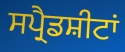
ਸਪ੍ਰੈਡਸ਼ੀਟਾਂ